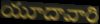
యూదావారి